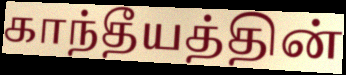
காந்தீயத்தின்